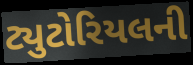
ટ્યુટોરિયલની